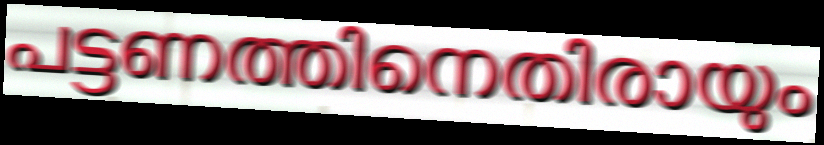
പട്ടണത്തിനെതിരായും